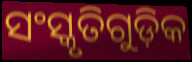
ସଂସ୍କୃତିଗୁଡ଼ିକ